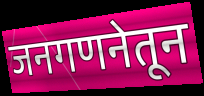
जनगणनेतून